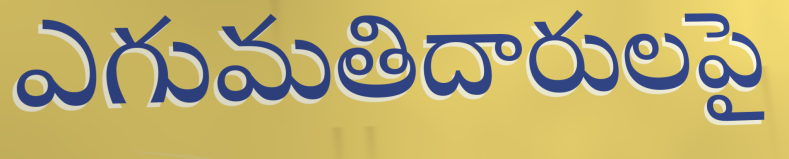
ఎగుమతిదారులపై